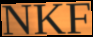
NKF